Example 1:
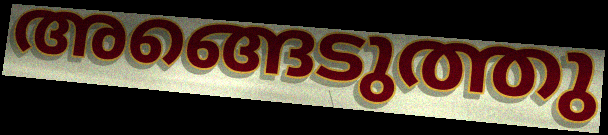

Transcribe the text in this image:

അങ്ങെടുത്തു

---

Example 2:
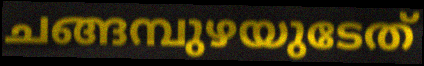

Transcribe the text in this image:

ചങ്ങമ്പുഴയുടേത്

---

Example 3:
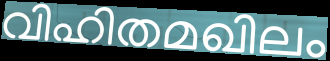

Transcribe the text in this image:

വിഹിതമഖിലം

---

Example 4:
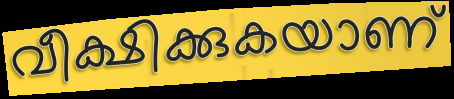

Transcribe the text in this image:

വീക്ഷിക്കുകയാണ്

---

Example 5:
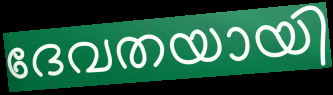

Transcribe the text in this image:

ദേവതയായി